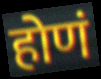
होणं